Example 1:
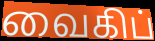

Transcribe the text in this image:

வைகிப்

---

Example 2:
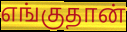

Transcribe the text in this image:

எங்குதான்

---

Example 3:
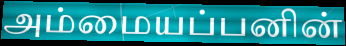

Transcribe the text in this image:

அம்மையப்பனின்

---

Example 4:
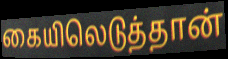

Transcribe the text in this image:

கையிலெடுத்தான்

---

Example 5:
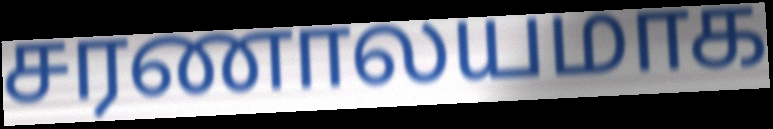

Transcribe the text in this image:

சரணாலயமாக